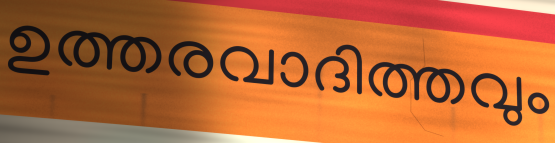
ഉത്തരവാദിത്തവും